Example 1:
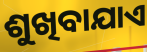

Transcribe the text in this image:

ଶୁଖିବାଯାଏ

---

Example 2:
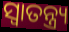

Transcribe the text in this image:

ସ୍ଵାତନ୍ତ୍ର୍ୟ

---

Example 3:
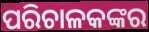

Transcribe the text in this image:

ପରିଚାଳକଙ୍କର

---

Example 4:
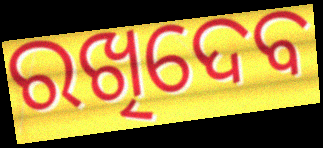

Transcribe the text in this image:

ରଖିଦେବ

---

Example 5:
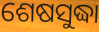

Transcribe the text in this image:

ଶେଷସୁଦ୍ଧା